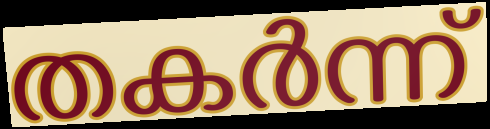
തകർന്ന്